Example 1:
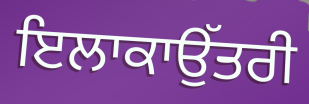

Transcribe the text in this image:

ਇਲਾਕਾਉੱਤਰੀ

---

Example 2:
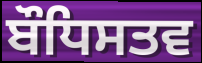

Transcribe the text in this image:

ਬੌਧਿਸਤਵ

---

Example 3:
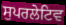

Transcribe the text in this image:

ਸੁਪਰਲੇਟਿਵ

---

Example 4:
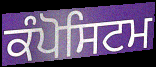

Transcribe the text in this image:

ਕੰਪੋਸਿਟਮ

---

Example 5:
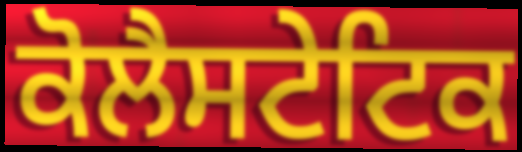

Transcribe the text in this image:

ਕੋਲੈਸਟੇਟਿਕ